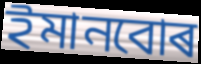
ইমানবোৰ